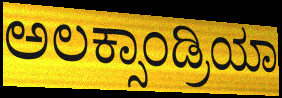
ಅಲಕ್ಸಾಂಡ್ರಿಯಾ